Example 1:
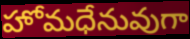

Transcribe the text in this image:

హోమధేనువుగా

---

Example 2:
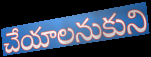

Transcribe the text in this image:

చేయాలనుకుని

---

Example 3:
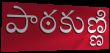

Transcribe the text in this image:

పాఠకుణ్ణి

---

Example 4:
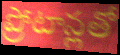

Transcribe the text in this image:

ప్రోటాన్లతో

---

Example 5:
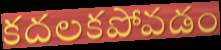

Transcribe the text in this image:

కదలకపోవడం